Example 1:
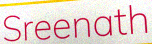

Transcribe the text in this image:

Sreenath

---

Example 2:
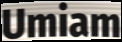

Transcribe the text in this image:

Umiam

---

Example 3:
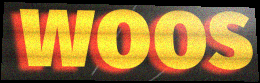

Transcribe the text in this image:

woos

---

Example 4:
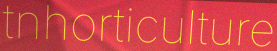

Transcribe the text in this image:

tnhorticulture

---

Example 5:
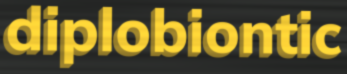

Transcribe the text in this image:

diplobiontic